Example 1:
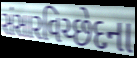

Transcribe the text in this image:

સંસારવિચ્છેદના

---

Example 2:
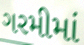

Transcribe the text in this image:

ગરમીમાં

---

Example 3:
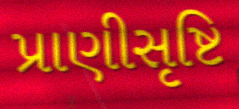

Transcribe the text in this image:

પ્રાણીસૃષ્ટિ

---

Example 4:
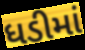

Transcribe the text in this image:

ધડીમાં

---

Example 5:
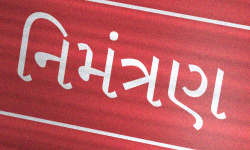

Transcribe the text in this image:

નિમંત્રણ